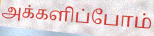
அக்களிப்போம்